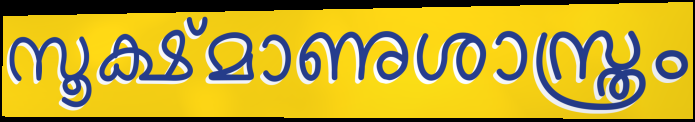
സൂക്ഷ്മാണുശാസ്ത്രം